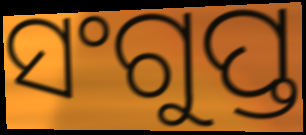
ସଂଗୁପ୍ତ